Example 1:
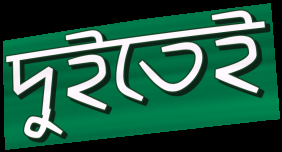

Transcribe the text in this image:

দুইতেই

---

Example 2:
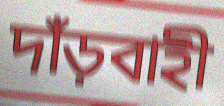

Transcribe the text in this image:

দাঁড়বাহী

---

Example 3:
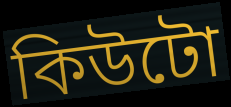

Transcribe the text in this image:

কিউটো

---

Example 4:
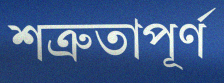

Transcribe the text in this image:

শত্রুতাপূর্ণ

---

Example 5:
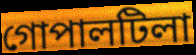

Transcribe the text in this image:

গোপালটিলা